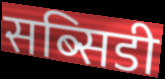
सब्सिडी